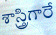
శాస్త్రిగారే